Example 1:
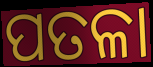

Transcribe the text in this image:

ପତଳା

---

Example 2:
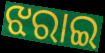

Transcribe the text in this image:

ଝରାଇ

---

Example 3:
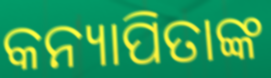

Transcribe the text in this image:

କନ୍ୟାପିତାଙ୍କ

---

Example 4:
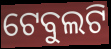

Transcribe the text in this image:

ଟେବୁଲଟି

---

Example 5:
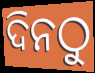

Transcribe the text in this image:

ଦିନଠୁ